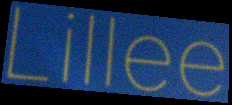
Lillee